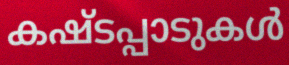
കഷ്ടപ്പാടുകൾ